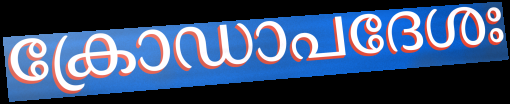
ക്രോഡാപദേശഃ